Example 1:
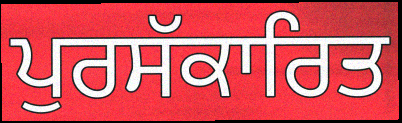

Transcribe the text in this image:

ਪੁਰਸੱਕਾਰਿਤ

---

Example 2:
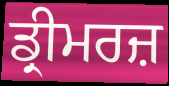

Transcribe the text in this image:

ਡ੍ਰੀਮਰਜ਼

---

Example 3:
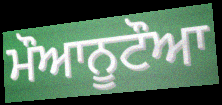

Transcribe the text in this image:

ਮੌਆਨੂਟੌਆ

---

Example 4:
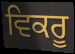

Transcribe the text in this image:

ਵਿਕਰੂ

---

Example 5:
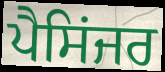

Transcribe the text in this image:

ਪੈਸਿਂਜਰ